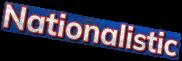
Nationalistic